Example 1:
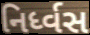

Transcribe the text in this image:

નિર્ધ્વસ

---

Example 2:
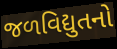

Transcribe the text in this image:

જળવિદ્યુતનો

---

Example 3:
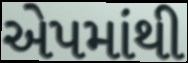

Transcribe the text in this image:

એપમાંથી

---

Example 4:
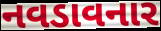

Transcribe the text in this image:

નવડાવનાર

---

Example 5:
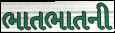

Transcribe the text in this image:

ભાતભાતની